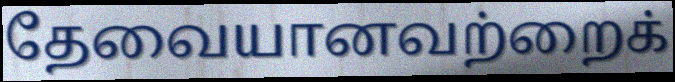
தேவையானவற்றைக்